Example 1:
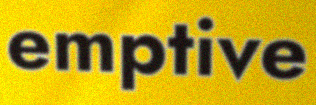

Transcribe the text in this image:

emptive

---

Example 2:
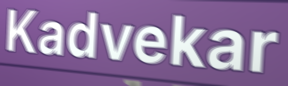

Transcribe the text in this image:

Kadvekar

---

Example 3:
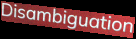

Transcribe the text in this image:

Disambiguation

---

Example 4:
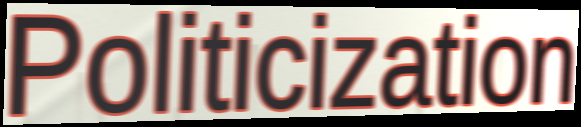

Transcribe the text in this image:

Politicization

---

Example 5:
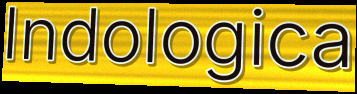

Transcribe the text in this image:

Indologica